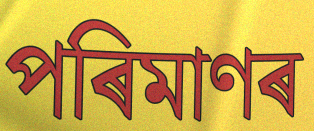
পৰিমাণৰ